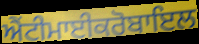
ਐਂਟੀਮਾਈਕਰੋਬਾਇਲ